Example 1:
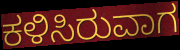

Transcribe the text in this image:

ಕಳಿಸಿರುವಾಗ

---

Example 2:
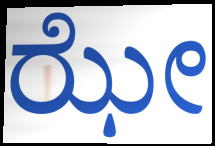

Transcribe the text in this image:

ಝೇ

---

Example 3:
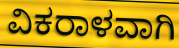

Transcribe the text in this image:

ವಿಕರಾಳವಾಗಿ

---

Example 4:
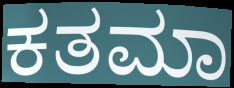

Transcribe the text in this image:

ಕತಮಾ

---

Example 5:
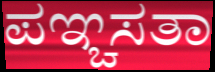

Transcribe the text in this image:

ಪಞ್ಚಸತಾ